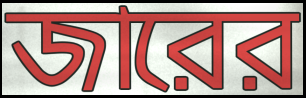
জারের